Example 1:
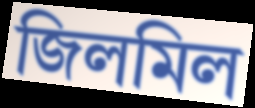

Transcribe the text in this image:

জিলমিল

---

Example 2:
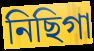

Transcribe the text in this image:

নিছিগা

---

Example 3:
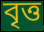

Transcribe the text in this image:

বৃত্ত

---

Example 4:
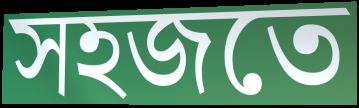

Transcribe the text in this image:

সহজতে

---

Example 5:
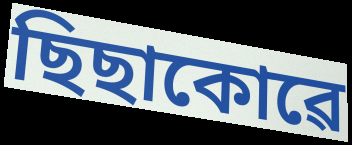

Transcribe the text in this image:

ছিছাকোৱে